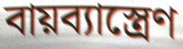
বায়ব্যাস্ত্রেণ